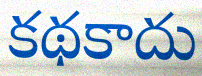
కథకాదు